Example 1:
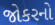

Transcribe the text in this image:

જોકરનો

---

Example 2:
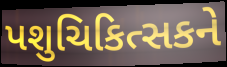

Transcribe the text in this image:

પશુચિકિત્સકને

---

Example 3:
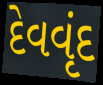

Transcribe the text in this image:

દેવવૃંદ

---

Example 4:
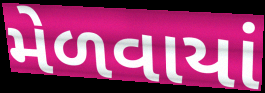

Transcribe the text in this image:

મેળવાયાં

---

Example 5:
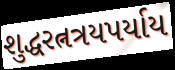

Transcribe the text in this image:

શુદ્ધરત્નત્રયપર્યાય